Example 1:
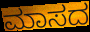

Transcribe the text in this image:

ಮಾಸದ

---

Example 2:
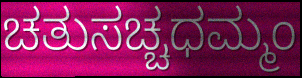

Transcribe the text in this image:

ಚತುಸಚ್ಚಧಮ್ಮಂ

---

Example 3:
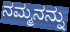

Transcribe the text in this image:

ನಮ್ಮನನ್ನು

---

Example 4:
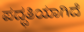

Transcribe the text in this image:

ಪದ್ಧತಿಯಾಗಿದೆ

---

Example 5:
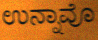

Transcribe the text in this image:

ಉನ್ನಾವೊ